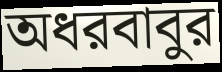
অধরবাবুর